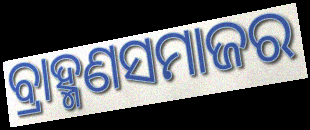
ବ୍ରାହ୍ମଣସମାଜର